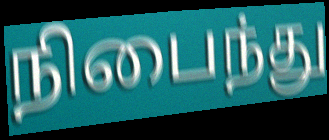
நிபைந்து